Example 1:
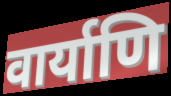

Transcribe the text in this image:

वार्याणि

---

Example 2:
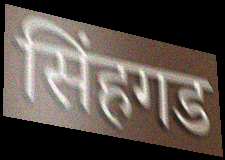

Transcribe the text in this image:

सिंहगड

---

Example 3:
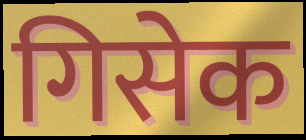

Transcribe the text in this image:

गिसेक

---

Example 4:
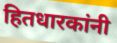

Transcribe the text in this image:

हितधारकांनी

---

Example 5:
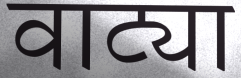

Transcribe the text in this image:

वाट्या